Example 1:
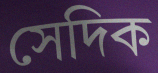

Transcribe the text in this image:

সেদিক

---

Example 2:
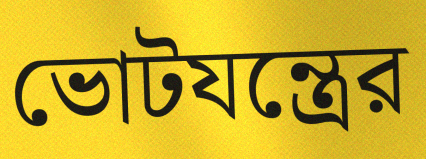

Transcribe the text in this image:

ভোটযন্ত্রের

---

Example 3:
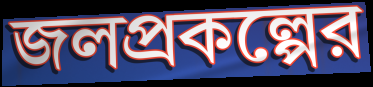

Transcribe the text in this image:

জলপ্রকল্পের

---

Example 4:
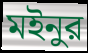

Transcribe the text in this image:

মইনুর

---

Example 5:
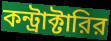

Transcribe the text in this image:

কন্ট্রাক্টারির